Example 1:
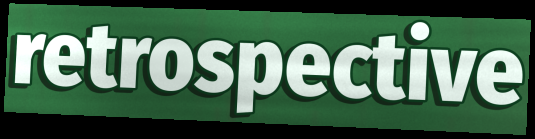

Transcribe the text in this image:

retrospective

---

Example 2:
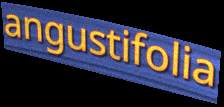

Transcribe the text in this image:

angustifolia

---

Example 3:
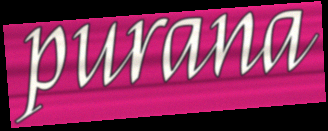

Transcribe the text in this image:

purana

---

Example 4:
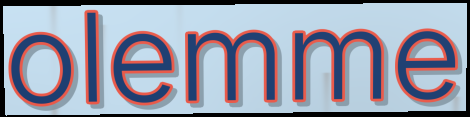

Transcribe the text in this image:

olemme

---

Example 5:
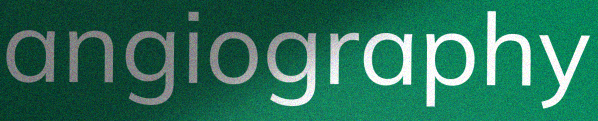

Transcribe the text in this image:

angiography